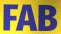
FAB